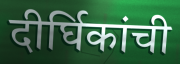
दीर्घिकांची